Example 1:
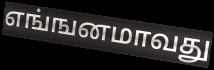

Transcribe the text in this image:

எங்ஙனமாவது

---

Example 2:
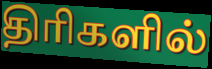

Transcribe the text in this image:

திரிகளில்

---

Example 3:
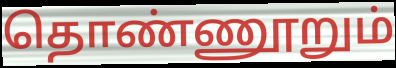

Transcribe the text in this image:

தொண்ணூறும்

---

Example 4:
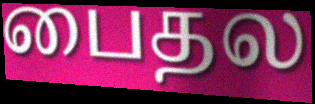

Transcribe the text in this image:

பைதல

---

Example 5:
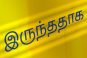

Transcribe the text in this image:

இருந்ததாக